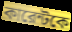
কারেন্টকে